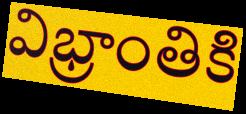
విభ్రాంతికి